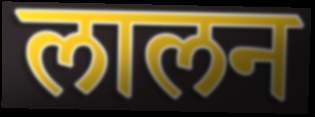
लालन